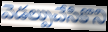
వెడల్పుచేసికొని